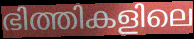
ഭിത്തികളിലെ